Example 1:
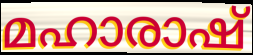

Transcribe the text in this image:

മഹാരാഷ്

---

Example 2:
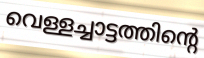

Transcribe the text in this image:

വെള്ളച്ചാട്ടത്തിന്റെ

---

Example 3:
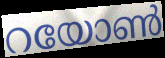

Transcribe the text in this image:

റയോൺ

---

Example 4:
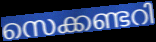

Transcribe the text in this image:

സെക്കണ്ടറി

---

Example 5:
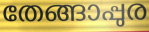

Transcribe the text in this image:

തേങ്ങാപ്പുര